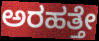
ಅರಹತ್ತೇ